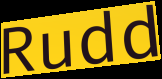
Rudd